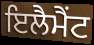
ਇਲੈਮੈਂਟ